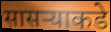
सासऱ्याकडे